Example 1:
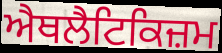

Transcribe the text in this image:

ਐਥਲੈਟਿਕਿਜ਼ਮ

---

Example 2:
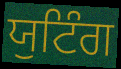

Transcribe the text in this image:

ਯੁਟਿੰਗ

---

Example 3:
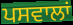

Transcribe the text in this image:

ਪਸਵਾਲਾਂ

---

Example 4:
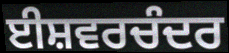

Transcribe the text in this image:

ਈਸ਼ਵਰਚੰਦਰ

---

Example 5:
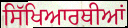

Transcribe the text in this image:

ਸਿੱਖਿਆਰਥੀਆਂ